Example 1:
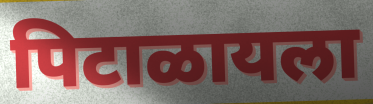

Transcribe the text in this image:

पिटाळायला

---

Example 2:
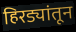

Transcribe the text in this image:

हिरड्यांतून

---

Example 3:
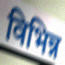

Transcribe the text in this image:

विभिन्न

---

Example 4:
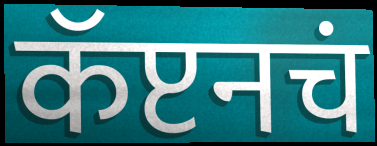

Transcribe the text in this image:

कॅप्टनचं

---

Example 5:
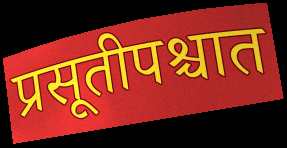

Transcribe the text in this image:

प्रसूतीपश्चात